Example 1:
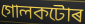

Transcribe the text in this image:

গোলকটোৰ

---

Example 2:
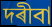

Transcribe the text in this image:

দৰীবা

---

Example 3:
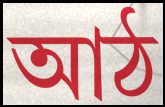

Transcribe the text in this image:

আঠ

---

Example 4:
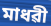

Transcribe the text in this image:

মাধৱী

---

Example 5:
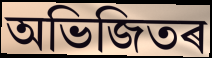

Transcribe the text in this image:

অভিজিতৰ